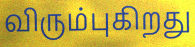
விரும்புகிறது